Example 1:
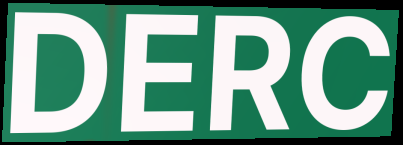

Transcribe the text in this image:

DERC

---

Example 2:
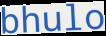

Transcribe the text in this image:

bhulo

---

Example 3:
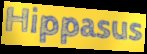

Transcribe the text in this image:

Hippasus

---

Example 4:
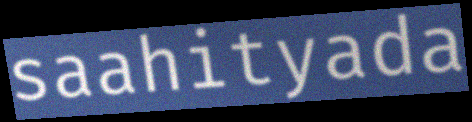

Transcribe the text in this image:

saahityada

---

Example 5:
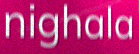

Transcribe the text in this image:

nighala